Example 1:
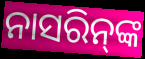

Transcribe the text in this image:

ନାସରିନ୍‌ଙ୍କ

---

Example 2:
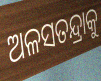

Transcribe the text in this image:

ଅଳସତନ୍ଦ୍ରାକୁ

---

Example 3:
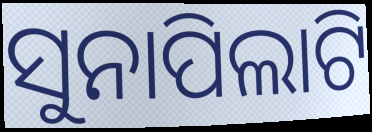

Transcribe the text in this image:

ସୁନାପିଲାଟି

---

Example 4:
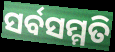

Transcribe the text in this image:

ସର୍ବସମ୍ମତି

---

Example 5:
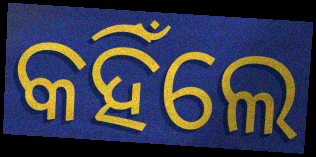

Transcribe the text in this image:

କହିଁଲେ